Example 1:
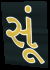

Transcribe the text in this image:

સૂં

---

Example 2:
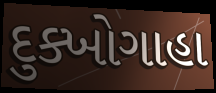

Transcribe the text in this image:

દુક્ખોગાહા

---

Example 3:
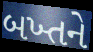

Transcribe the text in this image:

બખ્તને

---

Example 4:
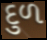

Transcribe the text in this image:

દુળ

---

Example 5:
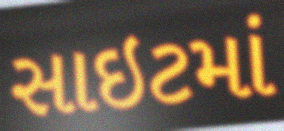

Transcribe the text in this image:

સાઇટમાં